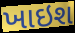
ખાઇશ